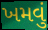
ખમવું